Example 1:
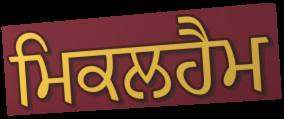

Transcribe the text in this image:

ਮਿਕਲਹੈਮ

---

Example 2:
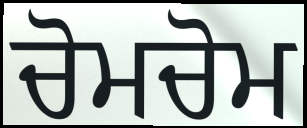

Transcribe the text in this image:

ਚੋਮਚੋਮ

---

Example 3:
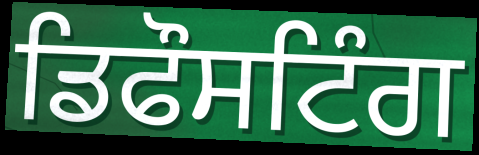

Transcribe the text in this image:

ਡਿਫੌਸਟਿੰਗ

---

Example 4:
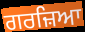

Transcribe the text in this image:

ਗਰਜ਼ਿਆ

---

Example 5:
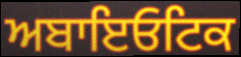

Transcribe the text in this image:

ਅਬਾਇਓਟਿਕ